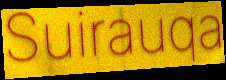
Suirauqa